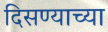
दिसण्याच्या